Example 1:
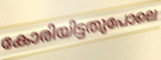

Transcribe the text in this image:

കോരിയിട്ടതുപോലെ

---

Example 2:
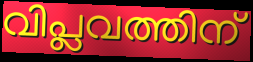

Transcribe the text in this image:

വിപ്ലവത്തിന്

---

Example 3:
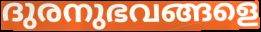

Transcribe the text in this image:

ദുരനുഭവങ്ങളെ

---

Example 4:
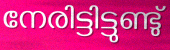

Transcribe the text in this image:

നേരിട്ടിട്ടുണ്ടു്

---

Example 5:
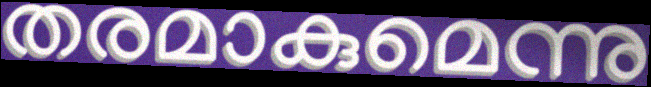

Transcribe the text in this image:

തരമാകുമെന്നു